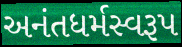
અનંતધર્મસ્વરૂપ